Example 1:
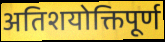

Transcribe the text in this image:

अतिशयोक्तिपूर्ण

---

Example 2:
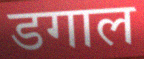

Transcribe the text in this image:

डगाल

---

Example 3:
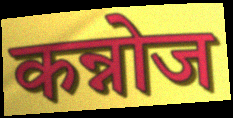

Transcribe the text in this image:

कन्नोज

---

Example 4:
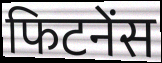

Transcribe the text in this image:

फिटनेंस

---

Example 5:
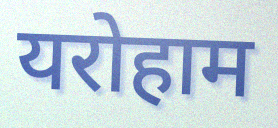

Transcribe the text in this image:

यरोहाम